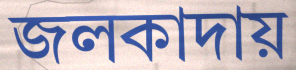
জলকাদায়